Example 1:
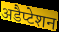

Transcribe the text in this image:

अडैप्टेशन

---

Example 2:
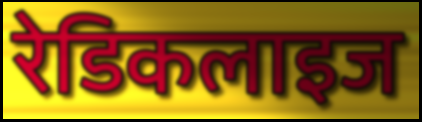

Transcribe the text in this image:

रेडिकलाइज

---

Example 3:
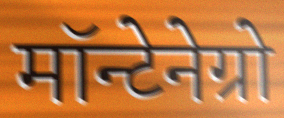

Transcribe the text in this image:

मॉन्टेनेग्रो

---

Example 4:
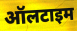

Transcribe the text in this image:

ऑलटाइम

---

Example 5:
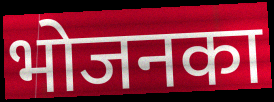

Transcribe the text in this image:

भोजनका